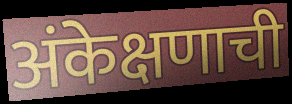
अंकेक्षणाची